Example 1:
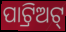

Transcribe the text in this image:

ପାଟ୍ରିଅଟ୍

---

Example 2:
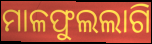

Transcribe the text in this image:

ମାଳଫୁଲଲାଗି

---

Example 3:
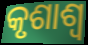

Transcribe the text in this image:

କୃଶାଶ୍ୱ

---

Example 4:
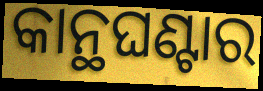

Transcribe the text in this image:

କାନ୍ଥଘଣ୍ଟାର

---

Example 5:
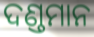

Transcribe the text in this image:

ଦଣ୍ଡମାନ